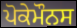
ਪੋਕੇਮੌਨਸ